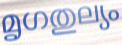
മൃഗതുല്യം